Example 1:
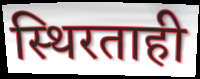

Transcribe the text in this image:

स्थिरताही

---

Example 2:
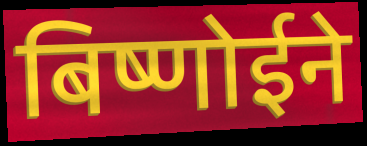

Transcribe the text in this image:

बिष्णोईने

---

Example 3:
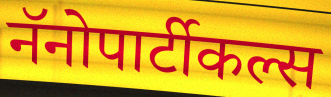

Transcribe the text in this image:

नॅनोपार्टीकल्स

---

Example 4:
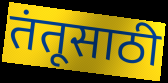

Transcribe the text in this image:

तंतूसाठी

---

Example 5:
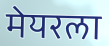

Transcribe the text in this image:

मेयरला